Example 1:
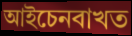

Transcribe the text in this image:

আইচেনবাখত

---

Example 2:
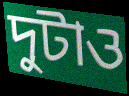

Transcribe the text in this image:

দুটাও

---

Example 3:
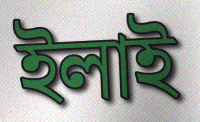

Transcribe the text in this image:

ইলাই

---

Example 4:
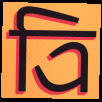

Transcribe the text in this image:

ত্ৰি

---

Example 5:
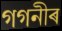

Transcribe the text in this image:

গগনীৰ